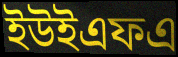
ইউইএফএ